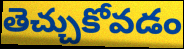
తెచ్చుకోవడం